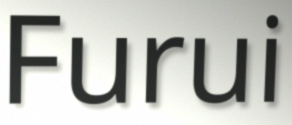
Furui